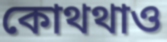
কোথথাও